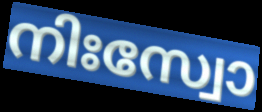
നിഃസ്വോ